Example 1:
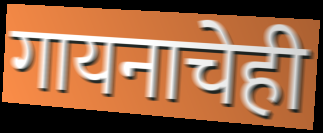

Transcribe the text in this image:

गायनाचेही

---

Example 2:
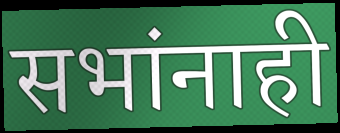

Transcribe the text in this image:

सभांनाही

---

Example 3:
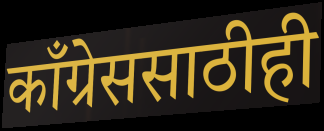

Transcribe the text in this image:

काँग्रेससाठीही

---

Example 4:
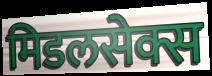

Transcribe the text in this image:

मिडलसेक्स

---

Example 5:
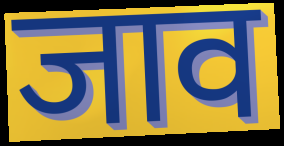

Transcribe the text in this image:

जाव